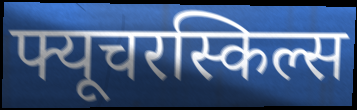
फ्यूचरस्किल्स